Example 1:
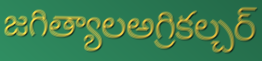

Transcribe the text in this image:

జగిత్యాలఅగ్రికల్చర్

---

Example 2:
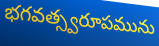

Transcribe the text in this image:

భగవత్స్వరూపమును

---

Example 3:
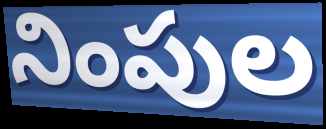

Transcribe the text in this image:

నింపుల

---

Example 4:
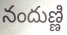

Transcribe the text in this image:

నందుణ్ణి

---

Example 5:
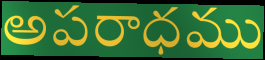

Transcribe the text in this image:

అపరాధము